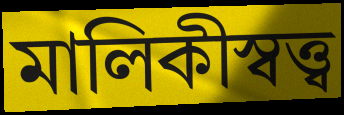
মালিকীস্বত্ত্ব